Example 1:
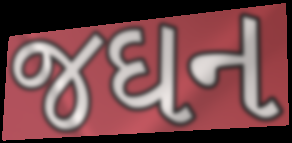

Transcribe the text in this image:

જઘન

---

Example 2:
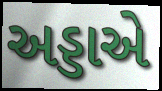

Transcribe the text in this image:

અડ્ડાએ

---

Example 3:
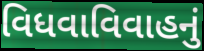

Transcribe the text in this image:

વિધવાવિવાહનું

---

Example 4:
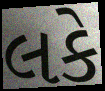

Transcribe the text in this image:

લકે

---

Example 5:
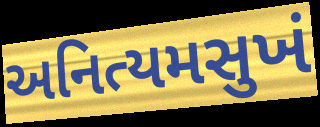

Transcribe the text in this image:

અનિત્યમસુખં